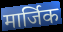
मार्जिक